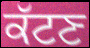
ਕੱਟਣ